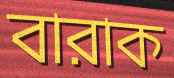
বারাক